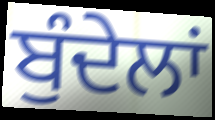
ਬੁੰਦੇਲਾਂ